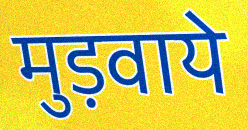
मुड़वाये